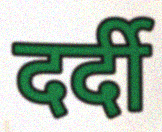
दर्दी